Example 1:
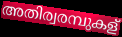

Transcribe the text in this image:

അതിര്വരമ്പുകള്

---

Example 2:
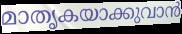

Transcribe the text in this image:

മാതൃകയാക്കുവാൻ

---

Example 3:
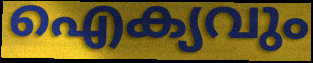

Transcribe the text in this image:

ഐക്യവും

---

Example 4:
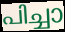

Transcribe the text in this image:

പിച്ചാ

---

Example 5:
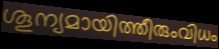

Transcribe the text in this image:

ശൂന്യമായിത്തീരുംവിധം